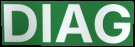
DIAG